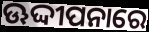
ଊଦ୍ଦୀପନାରେ